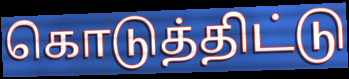
கொடுத்திட்டு